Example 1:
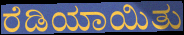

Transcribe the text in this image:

ರೆಡಿಯಾಯಿತು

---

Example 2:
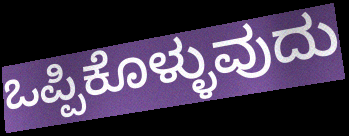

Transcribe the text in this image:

ಒಪ್ಪಿಕೊಳ್ಳುವುದು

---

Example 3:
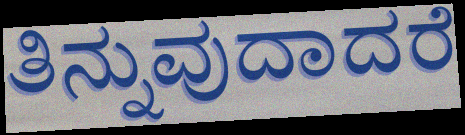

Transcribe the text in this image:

ತಿನ್ನುವುದಾದರೆ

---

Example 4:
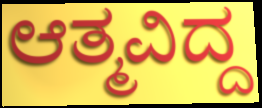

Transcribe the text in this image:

ಆತ್ಮವಿದ್ದ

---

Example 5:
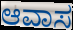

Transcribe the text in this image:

ಆವಾಸ